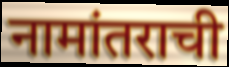
नामांतराची